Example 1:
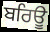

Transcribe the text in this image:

ਬਰਿਊ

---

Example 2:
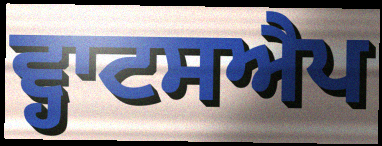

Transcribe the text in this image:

ਵ੍ਹਾਟਸਐਪ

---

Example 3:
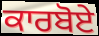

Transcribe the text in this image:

ਕਾਰਬੋਏ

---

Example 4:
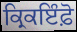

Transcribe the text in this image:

ਕ੍ਰਿਕਇੰਫ਼ੋ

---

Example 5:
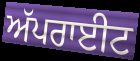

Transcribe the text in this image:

ਅੱਪਰਾਈਟ